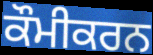
ਕੌਮੀਕਰਨ